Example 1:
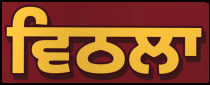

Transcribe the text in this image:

ਵਿਠਲਾ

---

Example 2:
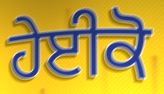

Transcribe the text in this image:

ਹੇਈਕੋ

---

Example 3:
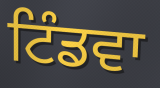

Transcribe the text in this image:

ਟਿੰਡਵਾ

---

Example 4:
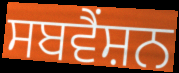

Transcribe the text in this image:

ਸਬਵੈਂਸ਼ਨ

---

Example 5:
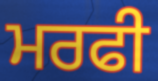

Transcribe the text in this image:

ਮਰਫੀ